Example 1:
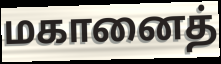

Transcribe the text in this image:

மகானைத்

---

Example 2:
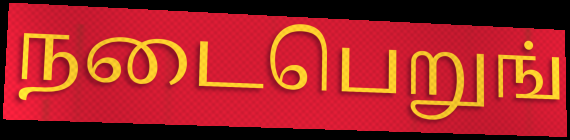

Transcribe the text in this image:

நடைபெறுங்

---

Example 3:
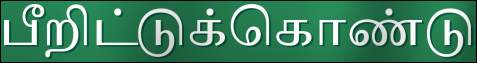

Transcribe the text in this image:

பீறிட்டுக்கொண்டு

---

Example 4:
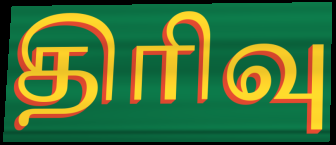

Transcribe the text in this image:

திரிவு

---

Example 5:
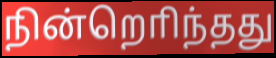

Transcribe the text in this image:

நின்றெரிந்தது